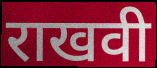
राखवी